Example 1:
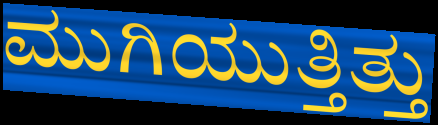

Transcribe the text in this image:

ಮುಗಿಯುತ್ತಿತ್ತು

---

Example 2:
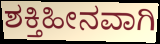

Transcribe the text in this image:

ಶಕ್ತಿಹೀನವಾಗಿ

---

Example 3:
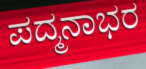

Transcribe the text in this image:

ಪದ್ಮನಾಭರ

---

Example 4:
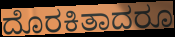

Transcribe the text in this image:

ದೊರಕಿತಾದರೂ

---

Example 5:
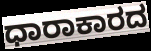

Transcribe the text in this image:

ಧಾರಾಕಾರದ